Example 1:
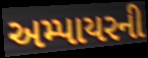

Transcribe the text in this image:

અમ્પાયરની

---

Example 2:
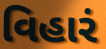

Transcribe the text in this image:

વિહારં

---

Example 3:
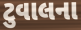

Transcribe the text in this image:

ટુવાલના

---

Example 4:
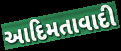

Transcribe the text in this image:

આદિમતાવાદી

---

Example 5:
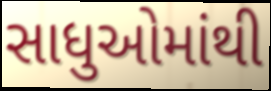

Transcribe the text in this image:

સાધુઓમાંથી